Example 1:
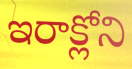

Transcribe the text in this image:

ఇరాక్లోని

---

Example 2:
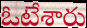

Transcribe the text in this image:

ఓటేశారు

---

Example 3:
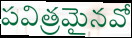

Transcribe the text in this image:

పవిత్రమైనవో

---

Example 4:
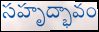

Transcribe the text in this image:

సహృద్భావం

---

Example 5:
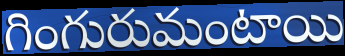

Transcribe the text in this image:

గింగురుమంటాయి